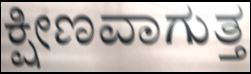
ಕ್ಷೀಣವಾಗುತ್ತ